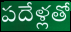
పదేళ్లతో